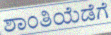
ಶಾಂತಿಯೆಡೆಗೆ